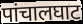
पांचालघाट